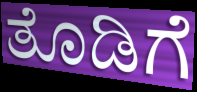
ತೊಡಿಗೆ